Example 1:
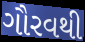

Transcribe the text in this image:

ગૌરવથી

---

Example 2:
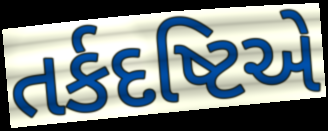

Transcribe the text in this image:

તર્કદષ્ટિએ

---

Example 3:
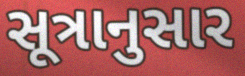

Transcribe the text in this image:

સૂત્રાનુસાર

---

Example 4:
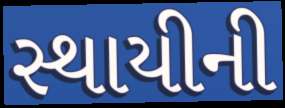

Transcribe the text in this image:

સ્થાયીની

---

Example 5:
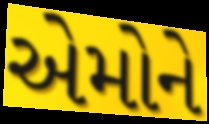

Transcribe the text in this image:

એમોને